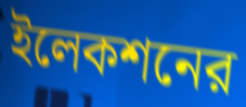
ইলেকশনের